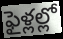
ఫైళ్లల్లో